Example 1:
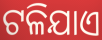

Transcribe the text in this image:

ଟଳିଯାଏ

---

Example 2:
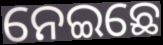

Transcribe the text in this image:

ନେଇଛେ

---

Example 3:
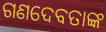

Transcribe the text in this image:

ଗଣଦେବତାଙ୍କ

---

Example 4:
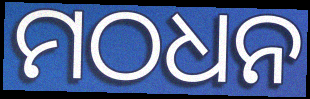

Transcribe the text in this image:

ମଠଧନ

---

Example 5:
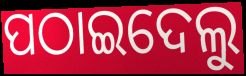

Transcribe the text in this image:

ପଠାଇଦେଲୁ